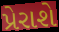
પ્રેરાશે